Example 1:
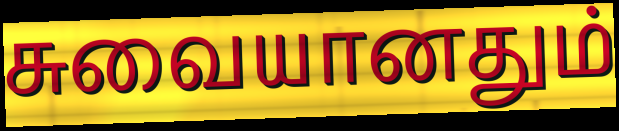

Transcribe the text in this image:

சுவையானதும்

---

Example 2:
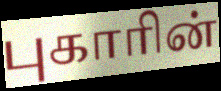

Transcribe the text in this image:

புகாரின்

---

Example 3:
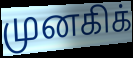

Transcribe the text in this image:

முனகிக்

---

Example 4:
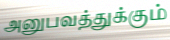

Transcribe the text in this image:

அனுபவத்துக்கும்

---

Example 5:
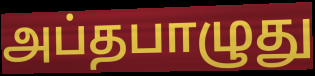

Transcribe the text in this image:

அப்தபாழுது